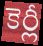
కెర్లీ